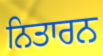
ਨਿਤਾਰਨ